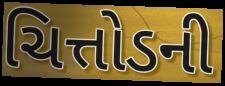
ચિત્તોડની